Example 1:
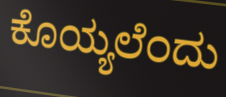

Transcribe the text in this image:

ಕೊಯ್ಯಲೆಂದು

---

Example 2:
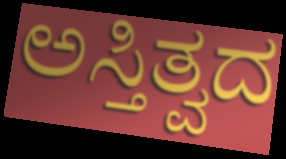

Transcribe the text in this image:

ಅಸ್ತಿತ್ವದ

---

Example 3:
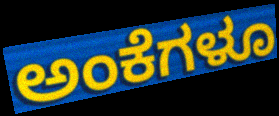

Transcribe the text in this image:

ಅಂಕೆಗಳೂ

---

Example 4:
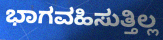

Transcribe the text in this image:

ಭಾಗವಹಿಸುತ್ತಿಲ್ಲ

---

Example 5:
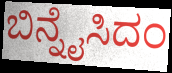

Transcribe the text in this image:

ಬಿನ್ನೈಸಿದಂ